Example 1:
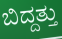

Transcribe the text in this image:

ಬಿದ್ದತ್ತು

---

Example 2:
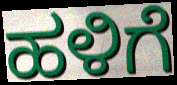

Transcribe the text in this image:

ಹಳಿಗೆ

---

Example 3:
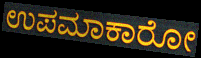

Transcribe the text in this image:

ಉಪಮಾಕಾರೋ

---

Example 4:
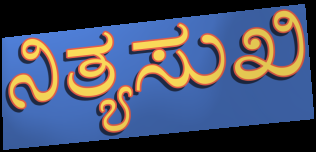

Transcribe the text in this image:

ನಿತ್ಯಸುಖಿ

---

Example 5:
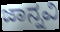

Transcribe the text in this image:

ಜಾನ್ನವಿ